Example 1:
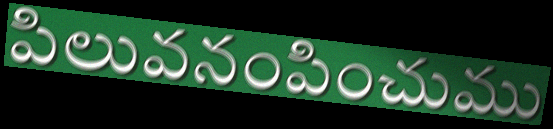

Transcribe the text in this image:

పిలువనంపించుము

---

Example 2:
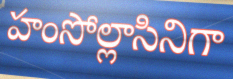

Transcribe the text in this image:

హంసోల్లాసినిగా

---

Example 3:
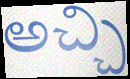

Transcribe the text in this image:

అచ్చి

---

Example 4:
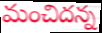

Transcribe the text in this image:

మంచిదన్న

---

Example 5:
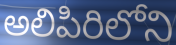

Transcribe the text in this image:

అలిపిరిలోని